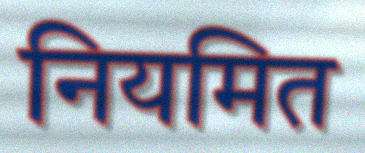
नियमित